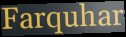
Farquhar